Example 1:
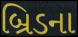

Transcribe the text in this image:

બ્રિડના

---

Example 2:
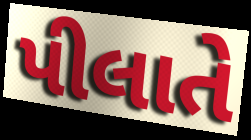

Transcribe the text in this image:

પીલાતે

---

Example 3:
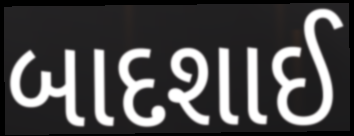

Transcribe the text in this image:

બાદશાઈ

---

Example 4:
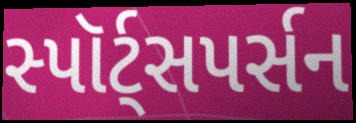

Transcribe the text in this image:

સ્પૉર્ટ્સપર્સન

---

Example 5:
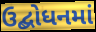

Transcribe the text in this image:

ઉદ્બોધનમાં